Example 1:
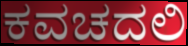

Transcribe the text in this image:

ಕವಚದಲಿ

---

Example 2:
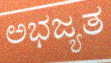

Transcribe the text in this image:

ಅಭಜ್ಯತ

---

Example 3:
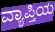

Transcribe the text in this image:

ವ್ಯಾಪ್ತಿಯ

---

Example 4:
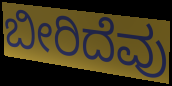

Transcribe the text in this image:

ಬೀರಿದೆವು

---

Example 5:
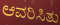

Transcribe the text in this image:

ಆವರಿಸಿತು